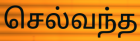
செல்வந்த